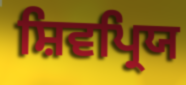
ਸ਼ਿਵਪ੍ਰਿਯ